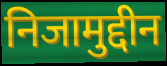
निजामुद्दीन